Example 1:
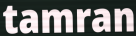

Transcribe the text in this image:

tamran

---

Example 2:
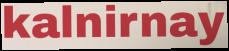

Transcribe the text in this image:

kalnirnay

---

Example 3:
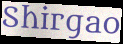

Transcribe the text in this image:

Shirgao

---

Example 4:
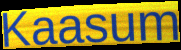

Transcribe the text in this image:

Kaasum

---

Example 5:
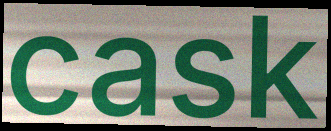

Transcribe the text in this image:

cask